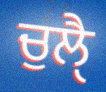
ਚੁਲੈੑ